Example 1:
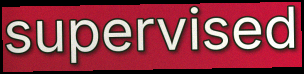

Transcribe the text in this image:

supervised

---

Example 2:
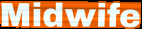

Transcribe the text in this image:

Midwife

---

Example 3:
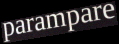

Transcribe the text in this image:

parampare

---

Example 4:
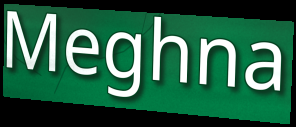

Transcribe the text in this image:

Meghna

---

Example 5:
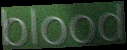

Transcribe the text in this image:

blood